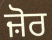
ਜ਼ੋਰ